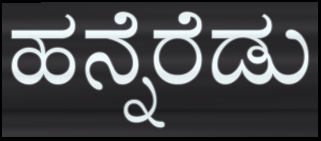
ಹನ್ನೆರೆಡು